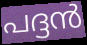
പദ്ദൻ